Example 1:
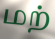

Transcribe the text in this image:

மற்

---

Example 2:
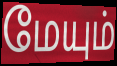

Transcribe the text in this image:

மேயும்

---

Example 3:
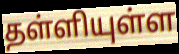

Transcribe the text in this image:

தள்ளியுள்ள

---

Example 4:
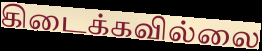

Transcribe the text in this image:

கிடைக்கவில்லை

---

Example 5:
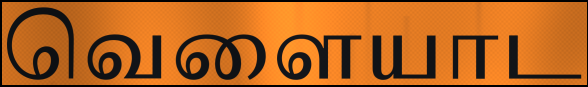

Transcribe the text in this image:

வெளையாட